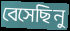
বেসেছিনু